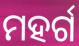
ମହର୍ଗ